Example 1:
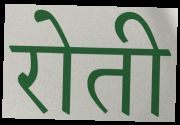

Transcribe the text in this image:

रोती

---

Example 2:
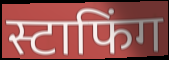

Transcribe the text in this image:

स्टाफिंग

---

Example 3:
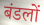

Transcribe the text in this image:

बंडलों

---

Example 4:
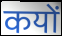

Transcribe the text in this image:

कयों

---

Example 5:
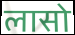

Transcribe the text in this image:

लासो